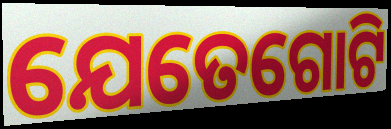
ଯେତେଗୋଟି